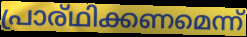
പ്രാര്ഥിക്കണമെന്ന്